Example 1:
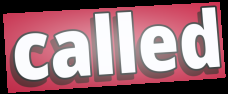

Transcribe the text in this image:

called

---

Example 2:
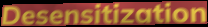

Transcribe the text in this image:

Desensitization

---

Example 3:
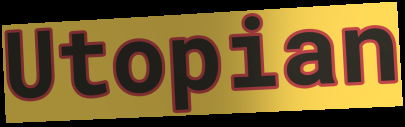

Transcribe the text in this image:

Utopian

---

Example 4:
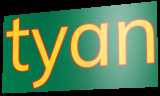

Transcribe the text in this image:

tyan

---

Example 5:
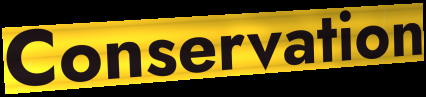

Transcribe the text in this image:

Conservation